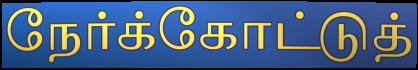
நேர்க்கோட்டுத்